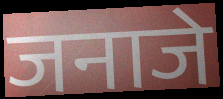
जनाजे